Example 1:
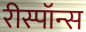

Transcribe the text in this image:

रीस्पॉन्स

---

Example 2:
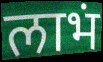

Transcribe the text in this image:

लाभं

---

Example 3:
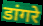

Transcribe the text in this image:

डांगरे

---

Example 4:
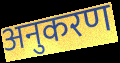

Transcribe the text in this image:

अनुकरण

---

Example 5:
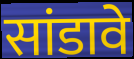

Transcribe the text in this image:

सांडावे